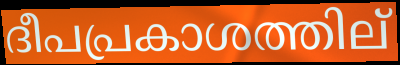
ദീപപ്രകാശത്തില്